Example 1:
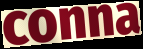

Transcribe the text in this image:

conna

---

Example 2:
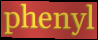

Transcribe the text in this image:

phenyl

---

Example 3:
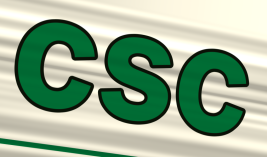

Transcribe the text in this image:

csc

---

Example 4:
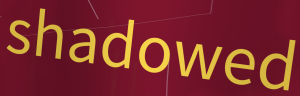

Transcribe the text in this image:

shadowed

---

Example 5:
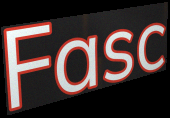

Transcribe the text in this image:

Fasc